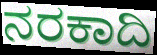
ನರಕಾದಿ